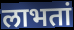
लाभतां